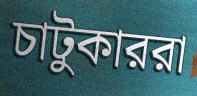
চাটুকাররা